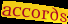
accords